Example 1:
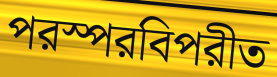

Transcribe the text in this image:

পরস্পরবিপরীত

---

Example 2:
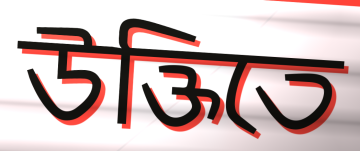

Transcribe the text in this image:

উক্তিতে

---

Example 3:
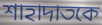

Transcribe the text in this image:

শাহাদাতকে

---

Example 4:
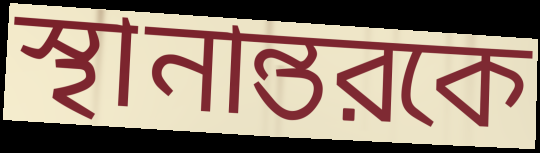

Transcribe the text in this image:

স্থানান্তরকে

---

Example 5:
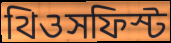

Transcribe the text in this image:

থিওসফিস্ট